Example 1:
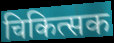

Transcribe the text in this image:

चिकित्सक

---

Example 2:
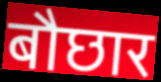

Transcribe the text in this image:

बौछार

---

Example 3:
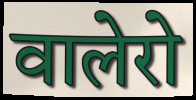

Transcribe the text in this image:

वालेरो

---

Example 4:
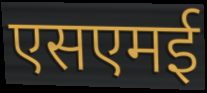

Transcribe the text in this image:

एसएमई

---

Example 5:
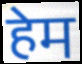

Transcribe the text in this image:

हेम